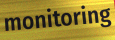
monitoring